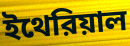
ইথেরিয়াল